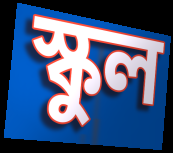
স্কুল